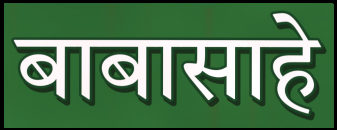
बाबासाहे